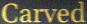
Carved